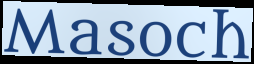
Masoch